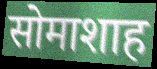
सोमाशाह